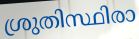
ശ്രുതിസ്ഥിരാ